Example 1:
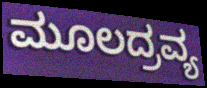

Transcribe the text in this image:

ಮೂಲದ್ರವ್ಯ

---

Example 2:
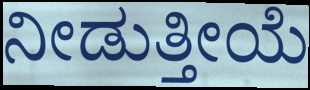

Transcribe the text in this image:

ನೀಡುತ್ತೀಯೆ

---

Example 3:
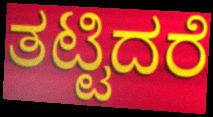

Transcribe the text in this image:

ತಟ್ಟಿದರೆ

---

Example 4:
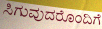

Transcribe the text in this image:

ಸಿಗುವುದರೊಂದಿಗೆ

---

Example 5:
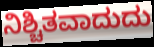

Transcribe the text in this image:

ನಿಶ್ಚಿತವಾದುದು